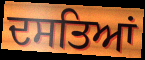
ਦਸਤਿਆਂ